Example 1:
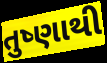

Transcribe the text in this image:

તુષ્ણાથી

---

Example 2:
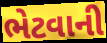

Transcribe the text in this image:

ભેટવાની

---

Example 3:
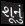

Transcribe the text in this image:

શૂનું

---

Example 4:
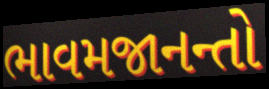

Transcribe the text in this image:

ભાવમજાનન્તો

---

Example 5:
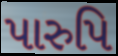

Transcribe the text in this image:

પારુપિ